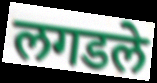
लगडले